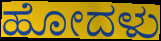
ಹೋದಳು